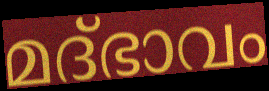
മദ്ഭാവം